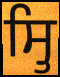
ਸ੍ਤਿ